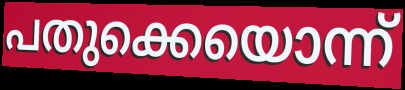
പതുക്കെയൊന്ന്